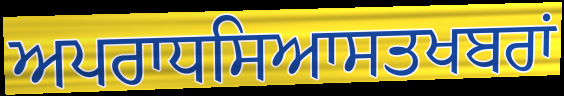
ਅਪਰਾਧਸਿਆਸਤਖਬਰਾਂ